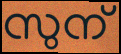
സുന്